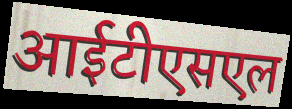
आईटीएसएल